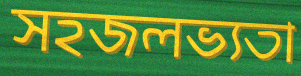
সহজলভ্যতা